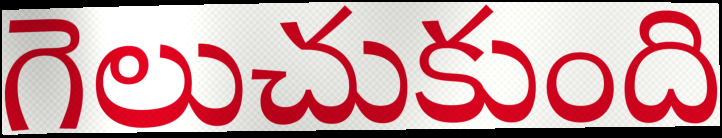
గెలుచుకుంది